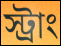
স্ট্রাং